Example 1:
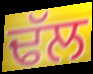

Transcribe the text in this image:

ਢੱਲ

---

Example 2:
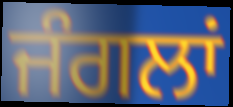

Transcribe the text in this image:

ਜੰਗਲਾਂ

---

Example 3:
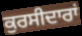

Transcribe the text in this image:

ਕੁਰਸੀਦਾਰਾਂ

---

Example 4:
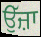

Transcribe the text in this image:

ਉੱਜ਼ਾ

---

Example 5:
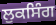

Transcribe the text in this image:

ਲੁਕਸਿੰਗ